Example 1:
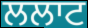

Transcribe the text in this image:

ਲਲਾਟ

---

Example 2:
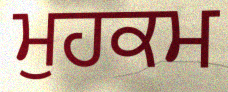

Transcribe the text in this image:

ਮੁਹਕਮ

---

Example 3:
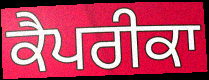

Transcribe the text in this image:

ਕੈਪਰੀਕਾ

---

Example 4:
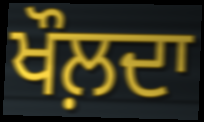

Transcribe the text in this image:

ਖੌਲ਼ਦਾ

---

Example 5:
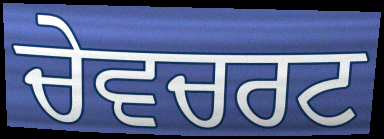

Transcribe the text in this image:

ਚੇਵਚਰਟ